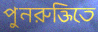
পুনরুক্তিতে